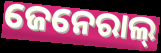
ଜେନେରାଲ୍